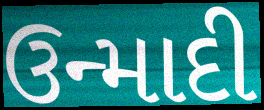
ઉન્માદી